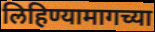
लिहिण्यामागच्या